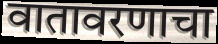
वातावरणाचा